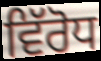
ਵਿੱਰੋਧ